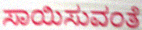
ಸಾಯಿಸುವಂತೆ